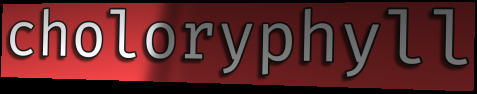
choloryphyll